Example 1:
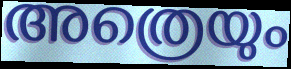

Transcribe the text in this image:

അത്രെയും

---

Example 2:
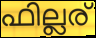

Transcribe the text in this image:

ഫില്ലര്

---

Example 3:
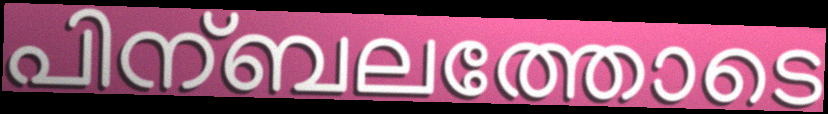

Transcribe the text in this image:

പിന്ബലത്തോടെ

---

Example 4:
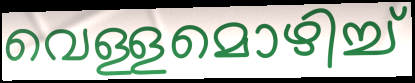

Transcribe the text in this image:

വെള്ളമൊഴിച്ച്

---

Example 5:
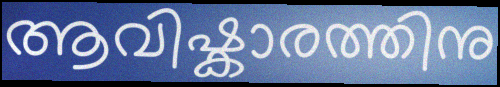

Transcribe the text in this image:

ആവിഷ്കാരത്തിനു